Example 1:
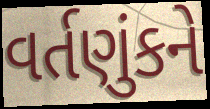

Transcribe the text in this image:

વર્તણુંકને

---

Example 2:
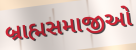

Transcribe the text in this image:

બ્રાહ્મસમાજીઓ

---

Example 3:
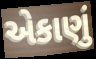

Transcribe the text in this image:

એકાણું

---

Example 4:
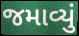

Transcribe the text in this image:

જમાવ્યું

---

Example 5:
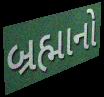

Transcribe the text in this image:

બ્રહ્માનો